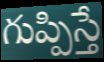
గుప్పిస్తే